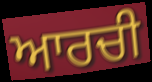
ਆਰਚੀ